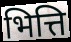
भित्ति